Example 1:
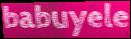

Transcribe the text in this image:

babuyele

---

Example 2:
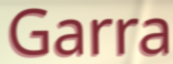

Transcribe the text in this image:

Garra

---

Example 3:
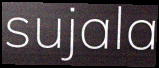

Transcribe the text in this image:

sujala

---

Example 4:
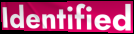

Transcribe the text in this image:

Identified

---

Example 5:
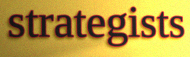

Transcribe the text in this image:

strategists